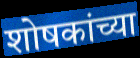
शोषकांच्या